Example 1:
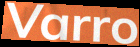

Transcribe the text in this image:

Varro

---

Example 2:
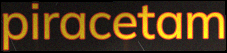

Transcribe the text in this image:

piracetam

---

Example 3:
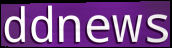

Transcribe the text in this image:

ddnews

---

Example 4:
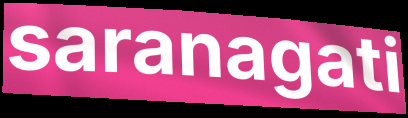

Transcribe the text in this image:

saranagati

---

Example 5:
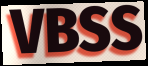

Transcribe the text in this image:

VBSS